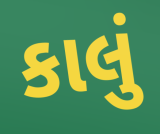
કાલું